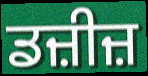
ਡਜ਼ੀਜ਼